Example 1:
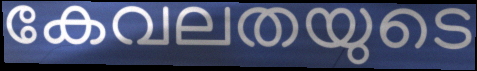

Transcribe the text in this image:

കേവലതയുടെ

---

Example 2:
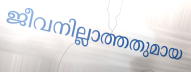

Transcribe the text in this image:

ജീവനില്ലാത്തതുമായ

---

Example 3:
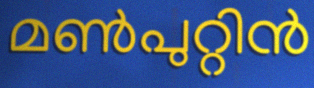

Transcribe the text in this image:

മൺപുറ്റിൻ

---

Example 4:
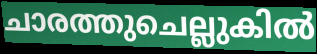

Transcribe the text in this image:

ചാരത്തുചെല്ലുകിൽ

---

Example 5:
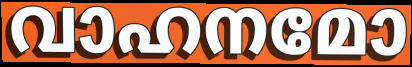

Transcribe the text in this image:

വാഹനമോ